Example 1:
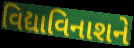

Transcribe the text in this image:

વિદ્યાવિનાશને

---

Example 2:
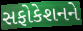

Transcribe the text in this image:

સફોકેશનને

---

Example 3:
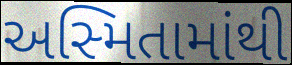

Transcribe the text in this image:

અસ્મિતામાંથી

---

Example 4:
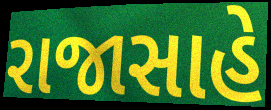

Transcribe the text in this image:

રાજાસાહે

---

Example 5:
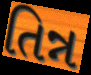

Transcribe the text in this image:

તિન્ન